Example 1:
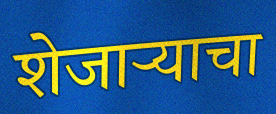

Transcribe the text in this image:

शेजार्‍याचा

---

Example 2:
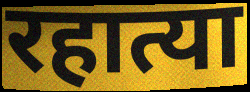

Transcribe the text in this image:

रहात्या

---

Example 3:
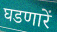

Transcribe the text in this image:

घडणारें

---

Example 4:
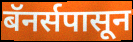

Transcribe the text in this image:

बॅनर्सपासून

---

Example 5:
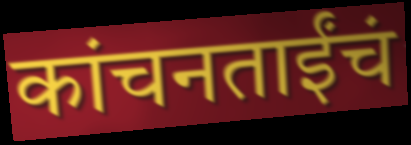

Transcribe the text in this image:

कांचनताईंचं